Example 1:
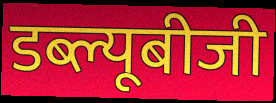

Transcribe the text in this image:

डब्ल्यूबीजी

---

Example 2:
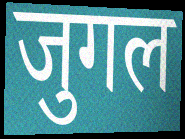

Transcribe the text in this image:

जुगल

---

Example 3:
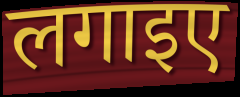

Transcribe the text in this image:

लगाइए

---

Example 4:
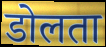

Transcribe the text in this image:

डोलता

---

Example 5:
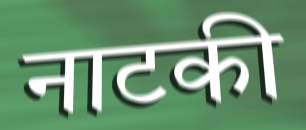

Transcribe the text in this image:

नाटकी